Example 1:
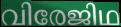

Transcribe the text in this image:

വിരേജിഥ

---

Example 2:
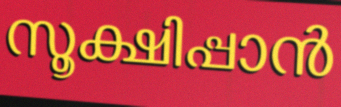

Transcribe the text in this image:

സൂക്ഷിപ്പാൻ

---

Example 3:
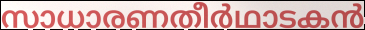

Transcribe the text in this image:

സാധാരണതീർഥാടകൻ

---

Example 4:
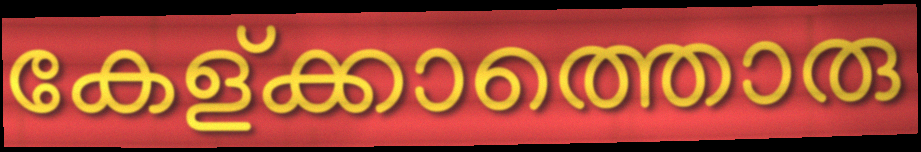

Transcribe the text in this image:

കേള്ക്കാത്തൊരു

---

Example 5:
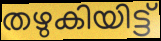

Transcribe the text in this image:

തഴുകിയിട്ട്